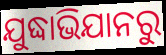
ଯୁଦ୍ଧାଭିଯାନରୁ